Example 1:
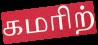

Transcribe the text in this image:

கமரிற்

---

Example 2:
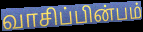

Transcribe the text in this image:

வாசிப்பின்பம்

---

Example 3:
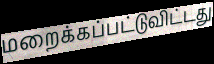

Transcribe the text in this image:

மறைக்கப்பட்டுவிட்டது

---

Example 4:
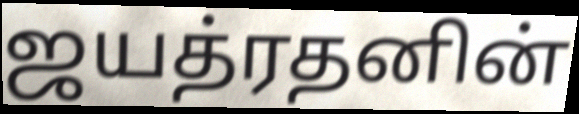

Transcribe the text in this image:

ஜயத்ரதனின்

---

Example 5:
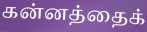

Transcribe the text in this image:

கன்னத்தைக்